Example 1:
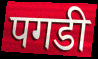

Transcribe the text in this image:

पगडी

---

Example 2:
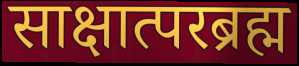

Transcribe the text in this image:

साक्षात्परब्रह्म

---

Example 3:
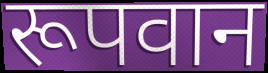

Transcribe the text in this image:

रूपवान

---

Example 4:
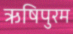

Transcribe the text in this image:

ऋषिपुरम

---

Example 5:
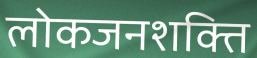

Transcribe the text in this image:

लोकजनशक्ति